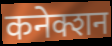
कनेक्शन